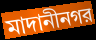
মাদানীনগর